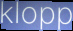
klopp